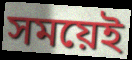
সময়েই